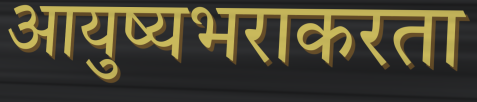
आयुष्यभराकरता